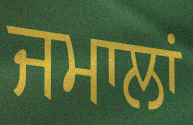
ਜਮਾਲਾਂ